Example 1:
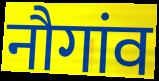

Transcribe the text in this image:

नौगांव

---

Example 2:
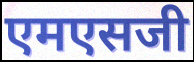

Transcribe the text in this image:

एमएसजी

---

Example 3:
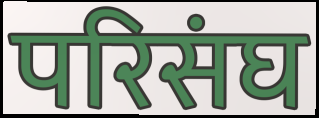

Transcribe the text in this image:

परिसंघ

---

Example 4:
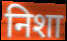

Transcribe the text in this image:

निशा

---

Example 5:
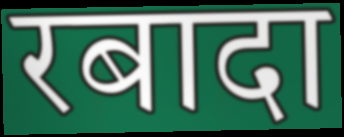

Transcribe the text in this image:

रबादा